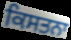
ਕਿਸਤਨਾ